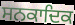
ਸਨਕਾਦਿਕ